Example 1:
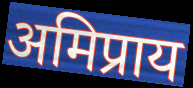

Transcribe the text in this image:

अमिप्राय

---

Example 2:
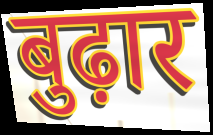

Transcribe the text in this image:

बुढ़ार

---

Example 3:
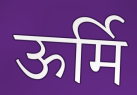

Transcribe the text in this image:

ऊर्मि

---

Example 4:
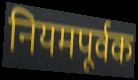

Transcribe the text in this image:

नियमपूर्वक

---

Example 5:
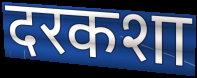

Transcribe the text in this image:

दरकशा